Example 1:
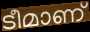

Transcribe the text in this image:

ടീമാണ്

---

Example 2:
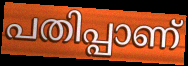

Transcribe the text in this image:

പതിപ്പാണ്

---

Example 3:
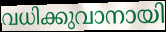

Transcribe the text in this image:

വധിക്കുവാനായി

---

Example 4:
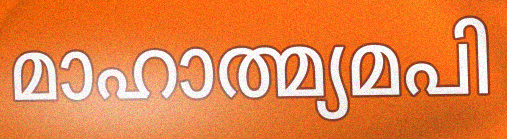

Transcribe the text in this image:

മാഹാത്മ്യമപി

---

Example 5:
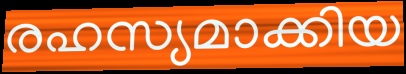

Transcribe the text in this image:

രഹസ്യമാക്കിയ